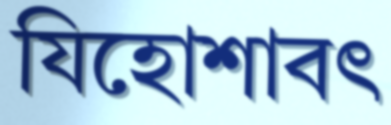
যিহোশাবৎ